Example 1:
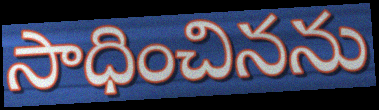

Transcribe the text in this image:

సాధించినను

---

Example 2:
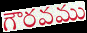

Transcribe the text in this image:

గౌరవము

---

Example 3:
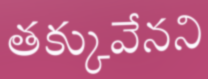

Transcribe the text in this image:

తక్కువేనని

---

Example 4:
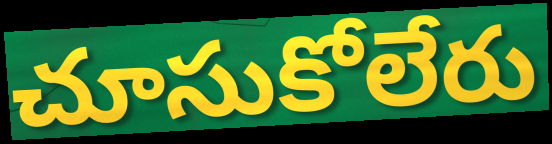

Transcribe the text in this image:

చూసుకోలేరు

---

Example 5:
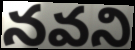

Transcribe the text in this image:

నవని